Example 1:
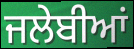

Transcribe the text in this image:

ਜਲੇਬੀਆਂ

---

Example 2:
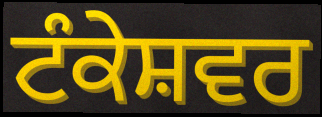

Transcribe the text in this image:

ਟੰਕੇਸ਼ਵਰ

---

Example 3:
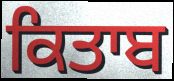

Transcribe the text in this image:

ਕਿਤਾਬ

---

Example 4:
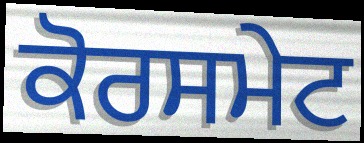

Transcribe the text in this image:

ਕੋਰਸਮੇਟ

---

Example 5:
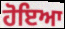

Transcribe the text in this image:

ਹੋਇਆ